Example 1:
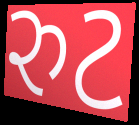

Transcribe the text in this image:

રુટ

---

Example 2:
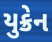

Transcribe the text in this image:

યુક્રેન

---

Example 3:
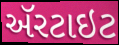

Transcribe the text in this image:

ઍરટાઇટ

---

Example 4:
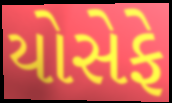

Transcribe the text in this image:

યોસેફે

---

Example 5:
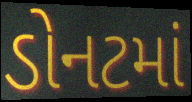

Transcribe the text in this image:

ડોનટમાં